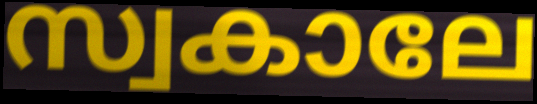
സ്വകാലേ